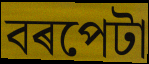
বৰপেটা